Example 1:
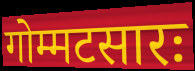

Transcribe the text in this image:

गोम्मटसारः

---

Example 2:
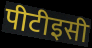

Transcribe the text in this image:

पीटीइसी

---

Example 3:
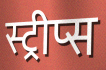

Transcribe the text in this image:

स्ट्रीप्स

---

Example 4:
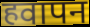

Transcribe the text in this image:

हवापन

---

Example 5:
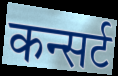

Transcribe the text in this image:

कन्सर्ट